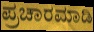
ಪ್ರಚಾರಮಾಡಿ